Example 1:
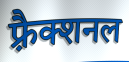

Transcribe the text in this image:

फ़्रैक्शनल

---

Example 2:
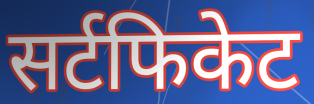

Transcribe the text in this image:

सर्टफिकेट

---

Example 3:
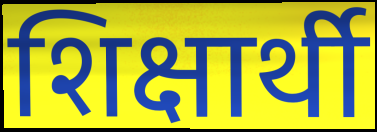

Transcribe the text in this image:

शिक्षार्थी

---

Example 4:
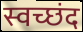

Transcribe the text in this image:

स्वच्छंद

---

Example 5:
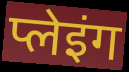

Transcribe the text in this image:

प्लेइंग